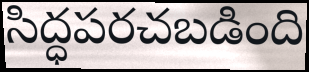
సిద్ధపరచబడింది